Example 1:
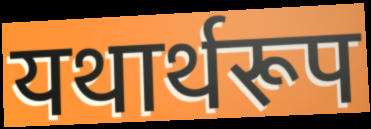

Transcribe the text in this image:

यथार्थरूप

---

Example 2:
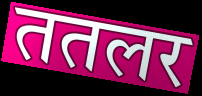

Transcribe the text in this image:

ततलर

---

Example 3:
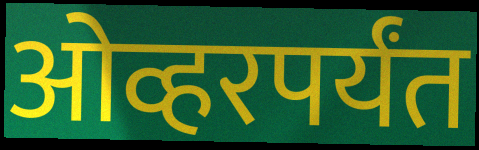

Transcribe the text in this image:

ओव्हरपर्यंत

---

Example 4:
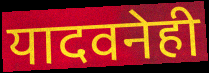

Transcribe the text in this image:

यादवनेही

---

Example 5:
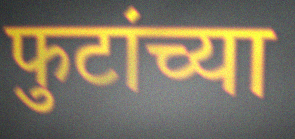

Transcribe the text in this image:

फुटांच्या